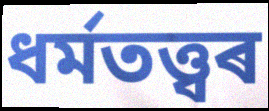
ধৰ্মতত্ত্বৰ